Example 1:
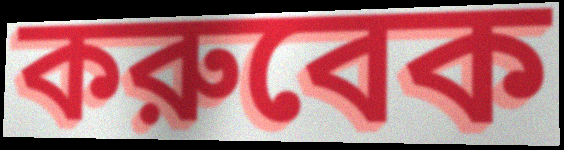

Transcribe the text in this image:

করুবেক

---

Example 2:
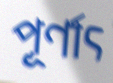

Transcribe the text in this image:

পূর্ণাৎ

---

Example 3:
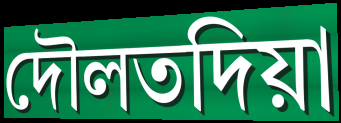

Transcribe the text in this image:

দৌলতদিয়া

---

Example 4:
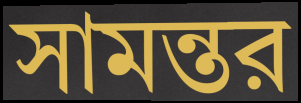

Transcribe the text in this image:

সামন্তর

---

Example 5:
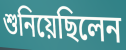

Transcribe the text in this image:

শুনিয়েছিলেন